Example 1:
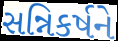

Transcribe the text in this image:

સન્નિકર્ષને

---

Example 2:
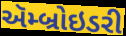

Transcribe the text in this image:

ઍમ્બ્રોઇડરી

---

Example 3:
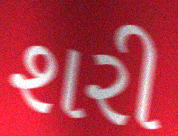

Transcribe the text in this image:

શરી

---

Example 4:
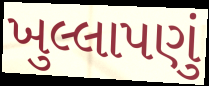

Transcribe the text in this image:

ખુલ્લાપણું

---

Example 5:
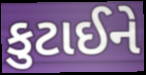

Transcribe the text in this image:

કુટાઈને